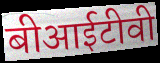
बीआईटीवी